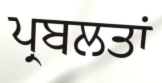
ਪ੍ਰਬਲਤਾਂ